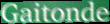
Gaitonde